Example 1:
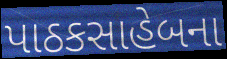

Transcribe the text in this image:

પાઠકસાહેબના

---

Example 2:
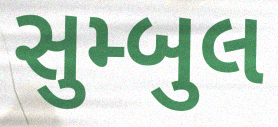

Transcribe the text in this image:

સુમ્બુલ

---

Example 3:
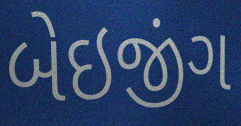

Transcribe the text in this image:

બેઇજીંગ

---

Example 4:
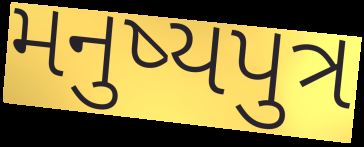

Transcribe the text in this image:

મનુષ્યપુત્ર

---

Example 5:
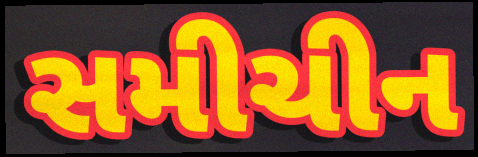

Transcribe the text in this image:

સમીચીન